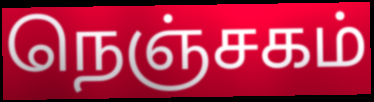
நெஞ்சகம்